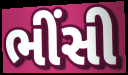
ભીંસી